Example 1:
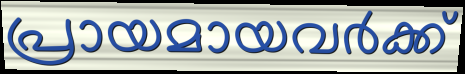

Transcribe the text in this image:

പ്രായമായവർക്ക്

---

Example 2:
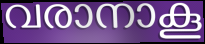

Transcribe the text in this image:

വരാനാകൂ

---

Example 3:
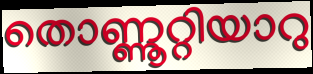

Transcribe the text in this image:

തൊണ്ണൂറ്റിയാറു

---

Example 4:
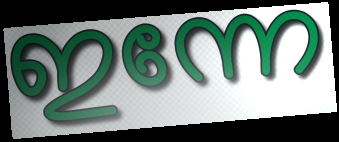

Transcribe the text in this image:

ഇന്നേ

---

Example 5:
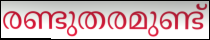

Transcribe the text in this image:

രണ്ടുതരമുണ്ട്